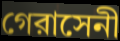
গেরাসেনী